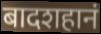
बादशहानं